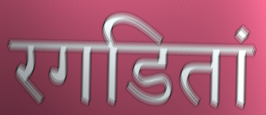
रगडितां